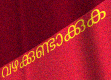
വഴക്കുണ്ടാക്കുക